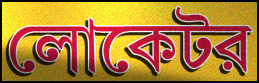
লোকেটর